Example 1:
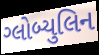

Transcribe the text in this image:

ગ્લોબ્યુલિન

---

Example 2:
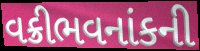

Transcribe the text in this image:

વક્રીભવનાંકની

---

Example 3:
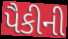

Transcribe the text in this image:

પૈકીની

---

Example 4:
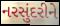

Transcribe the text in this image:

નરસુંદરીને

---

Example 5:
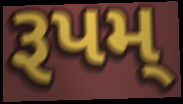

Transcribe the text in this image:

રૂપમ્